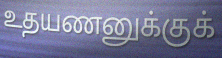
உதயணனுக்குக்